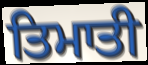
ਤਿਮਾਤੀ